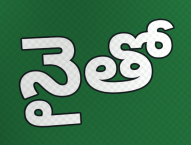
నైతో